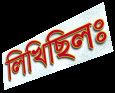
লিখিছিলঃ